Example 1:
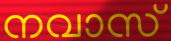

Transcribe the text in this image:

നവാസ്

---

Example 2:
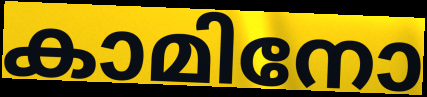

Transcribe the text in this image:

കാമിനോ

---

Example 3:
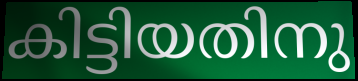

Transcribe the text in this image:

കിട്ടിയതിനു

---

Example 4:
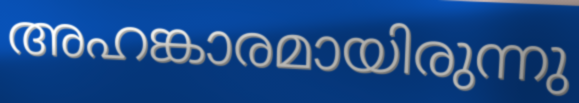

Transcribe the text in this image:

അഹങ്കാരമായിരുന്നു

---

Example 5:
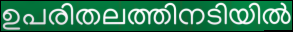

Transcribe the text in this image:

ഉപരിതലത്തിനടിയിൽ